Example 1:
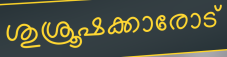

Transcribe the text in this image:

ശുശ്രൂഷക്കാരോട്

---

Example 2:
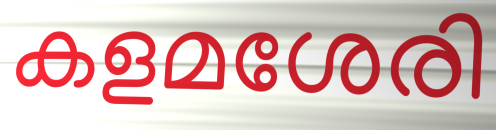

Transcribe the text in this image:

കളമശേരി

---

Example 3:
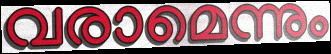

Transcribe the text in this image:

വരാമെന്നും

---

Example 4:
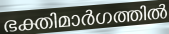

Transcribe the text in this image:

ഭക്തിമാർഗത്തിൽ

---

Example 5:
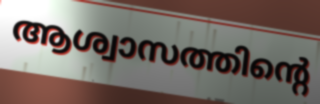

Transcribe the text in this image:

ആശ്വാസത്തിന്റെ